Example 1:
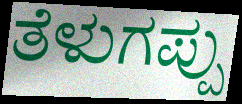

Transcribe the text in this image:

ತೆಳುಗಪ್ಪು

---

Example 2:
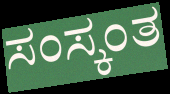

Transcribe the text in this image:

ಸಂಸ್ಕಂತ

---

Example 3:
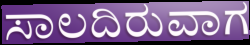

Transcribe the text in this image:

ಸಾಲದಿರುವಾಗ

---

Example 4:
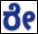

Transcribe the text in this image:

ರೇ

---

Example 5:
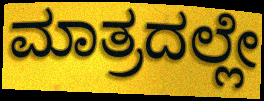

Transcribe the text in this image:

ಮಾತ್ರದಲ್ಲೇ